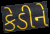
કેડીને